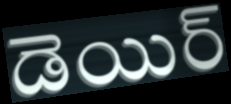
డెయిర్